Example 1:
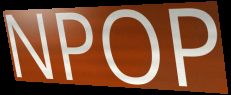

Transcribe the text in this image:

NPOP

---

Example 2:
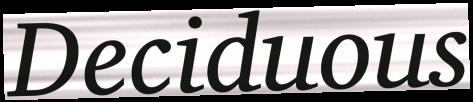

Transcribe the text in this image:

Deciduous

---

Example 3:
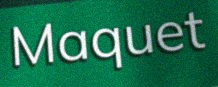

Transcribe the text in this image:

Maquet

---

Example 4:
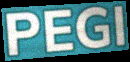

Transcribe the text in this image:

PEGI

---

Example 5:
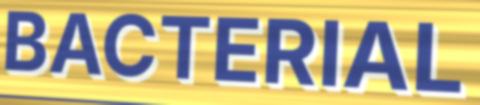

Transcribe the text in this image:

BACTERIAL